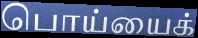
பொய்யைக்